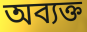
অব্যক্ত